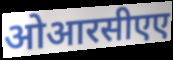
ओआरसीएए